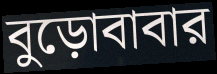
বুড়োবাবার